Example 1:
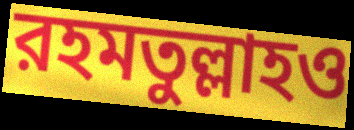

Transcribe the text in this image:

রহমতুল্লাহও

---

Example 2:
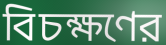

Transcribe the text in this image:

বিচক্ষণের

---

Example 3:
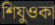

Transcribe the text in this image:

শিযুওকা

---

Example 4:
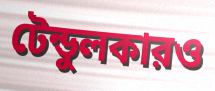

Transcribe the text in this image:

টেন্ডুলকারও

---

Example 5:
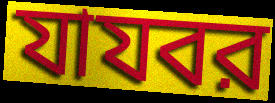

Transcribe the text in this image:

যাযবর